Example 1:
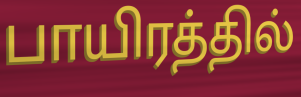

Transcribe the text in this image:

பாயிரத்தில்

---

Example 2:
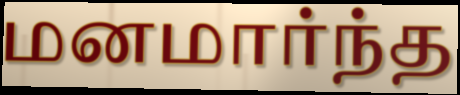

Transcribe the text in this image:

மனமார்ந்த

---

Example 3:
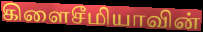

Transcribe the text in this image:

கிளைசீமியாவின்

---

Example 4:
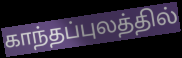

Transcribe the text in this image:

காந்தப்புலத்தில்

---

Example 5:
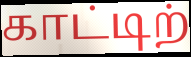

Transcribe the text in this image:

காட்டிற்